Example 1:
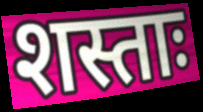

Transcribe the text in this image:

शस्ताः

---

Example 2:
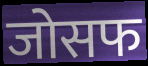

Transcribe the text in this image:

जोसफ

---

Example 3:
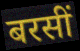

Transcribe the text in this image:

बरसीं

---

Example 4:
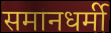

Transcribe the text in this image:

समानधर्मी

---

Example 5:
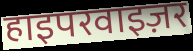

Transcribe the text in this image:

हाइपरवाइज़र